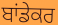
ਬਾਂਡੇਕਰ